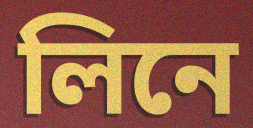
লিনে